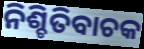
ନିଶ୍ଚିତିବାଚକ